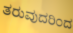
ತರುವುದರಿಂದ